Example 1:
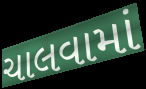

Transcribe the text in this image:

ચાલવામાં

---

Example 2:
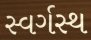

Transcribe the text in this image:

સ્વર્ગસ્થ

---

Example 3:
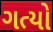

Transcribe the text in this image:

ગત્યો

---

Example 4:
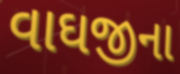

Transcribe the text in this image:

વાઘજીના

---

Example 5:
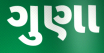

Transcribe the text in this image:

ગુણા